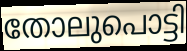
തോലുപൊട്ടി